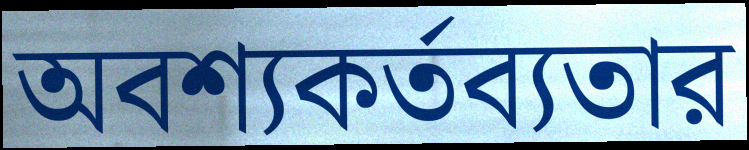
অবশ্যকর্তব্যতার